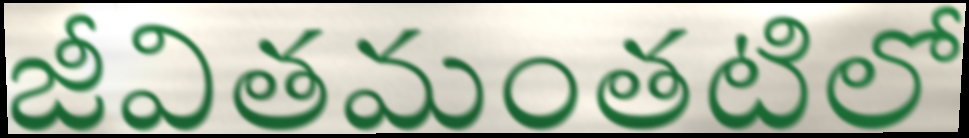
జీవితమంతటిలో